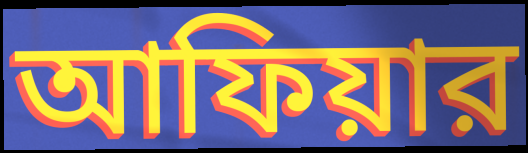
আফিয়ার